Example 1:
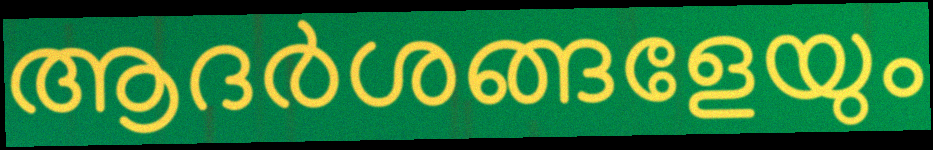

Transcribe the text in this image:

ആദർശങ്ങളേയും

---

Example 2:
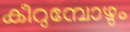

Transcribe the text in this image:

കീറുമ്പോഴും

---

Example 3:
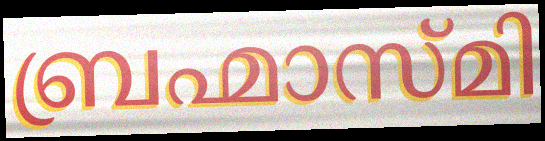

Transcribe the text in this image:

ബ്രഹ്മാസ്മി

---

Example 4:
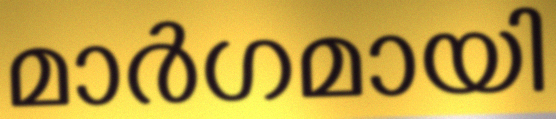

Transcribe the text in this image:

മാർഗമായി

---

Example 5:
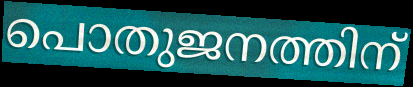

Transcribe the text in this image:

പൊതുജനത്തിന്